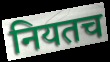
नियतच